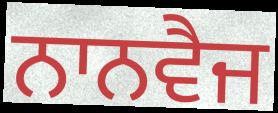
ਨਾਨਵੈਜ